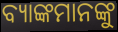
ବ୍ୟାଙ୍କମାନଙ୍କୁ